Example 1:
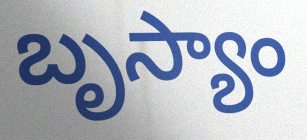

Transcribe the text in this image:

బృస్యాం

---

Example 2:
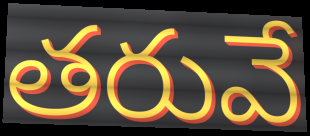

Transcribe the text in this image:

తరువే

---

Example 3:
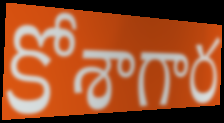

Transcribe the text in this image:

కోశాగార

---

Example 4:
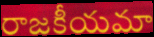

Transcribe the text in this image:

రాజకీయమా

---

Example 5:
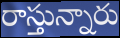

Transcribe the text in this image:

రాస్తున్నారు